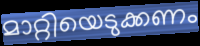
മാറ്റിയെടുക്കണം